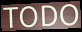
TODO